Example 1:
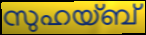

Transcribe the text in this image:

സുഹയ്ബ്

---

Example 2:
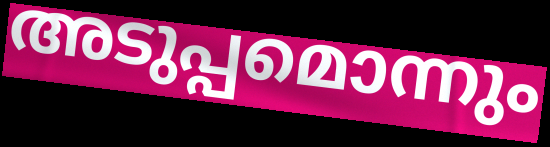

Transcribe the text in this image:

അടുപ്പമൊന്നും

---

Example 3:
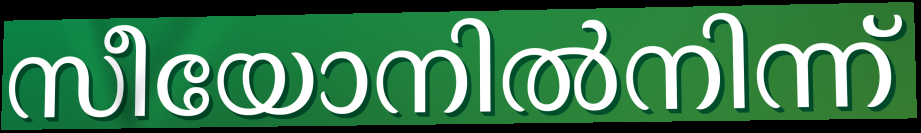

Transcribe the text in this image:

സീയോനിൽനിന്ന്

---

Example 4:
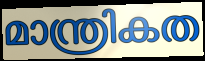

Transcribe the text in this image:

മാന്ത്രികത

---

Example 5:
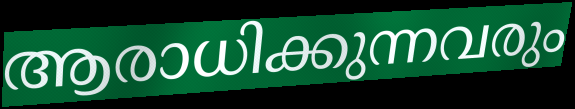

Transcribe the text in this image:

ആരാധിക്കുന്നവരും